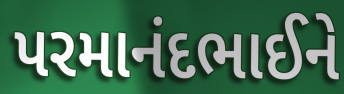
પરમાનંદભાઈને